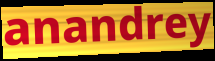
anandrey